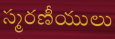
స్మరణీయులు